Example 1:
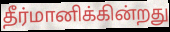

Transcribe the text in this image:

தீர்மானிக்கின்றது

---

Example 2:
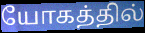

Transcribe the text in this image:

யோகத்தில்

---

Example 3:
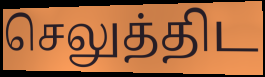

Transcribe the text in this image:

செலுத்திட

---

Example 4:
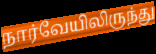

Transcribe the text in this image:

நார்வேயிலிருந்து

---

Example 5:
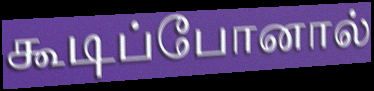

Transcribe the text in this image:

கூடிப்போனால்